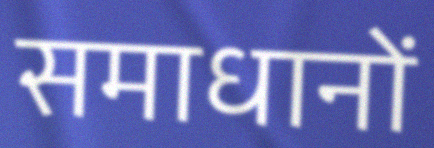
समाधानों